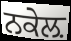
ਨਕੇਲ਼